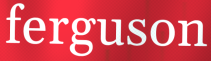
ferguson